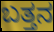
ಬತ್ತನ